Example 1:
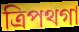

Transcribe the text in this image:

ত্রিপথগা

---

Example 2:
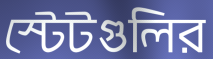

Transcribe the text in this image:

স্টেটগুলির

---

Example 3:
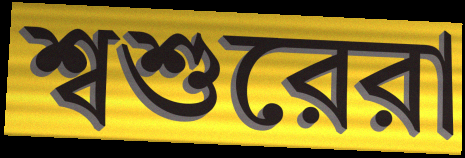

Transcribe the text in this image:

শ্বশুরেরা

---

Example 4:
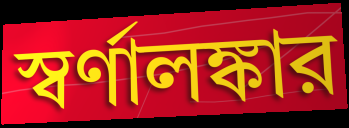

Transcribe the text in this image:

স্বর্ণালঙ্কার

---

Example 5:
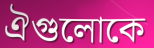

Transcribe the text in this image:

ঐগুলোকে